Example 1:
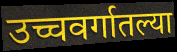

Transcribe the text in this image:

उच्चवर्गातल्या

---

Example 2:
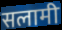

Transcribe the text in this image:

सलामी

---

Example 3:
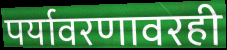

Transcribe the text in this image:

पर्यावरणावरही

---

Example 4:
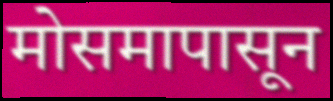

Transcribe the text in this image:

मोसमापासून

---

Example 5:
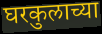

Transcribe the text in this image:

घरकुलाच्या